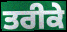
ਤਰੀਕੇ